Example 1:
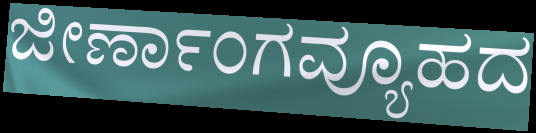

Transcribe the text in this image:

ಜೀರ್ಣಾಂಗವ್ಯೂಹದ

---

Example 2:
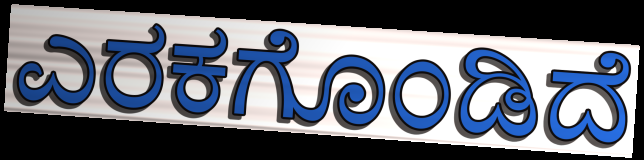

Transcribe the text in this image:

ಎರಕಗೊಂಡಿದೆ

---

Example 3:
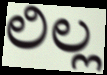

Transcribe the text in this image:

ಲಿಲ್ಲ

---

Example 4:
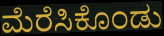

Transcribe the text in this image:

ಮೆರೆಸಿಕೊಂಡು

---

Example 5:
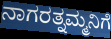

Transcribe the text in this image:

ನಾಗರತ್ನಮ್ಮನಿಗೆ